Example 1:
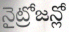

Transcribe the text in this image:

నైట్రోజన్లో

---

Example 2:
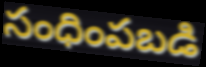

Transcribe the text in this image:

సంధింపబడి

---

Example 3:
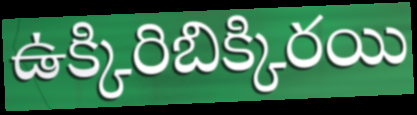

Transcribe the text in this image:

ఉక్కిరిబిక్కిరయి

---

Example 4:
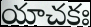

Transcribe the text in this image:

యాచకః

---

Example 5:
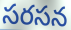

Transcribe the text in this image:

సరసన